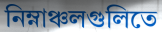
নিম্নাঞ্চলগুলিতে